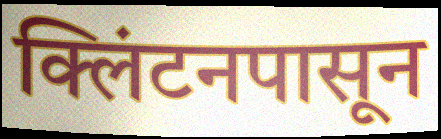
क्लिंटनपासून